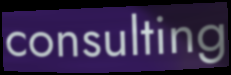
consulting